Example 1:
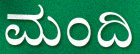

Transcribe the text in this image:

ಮಂದಿ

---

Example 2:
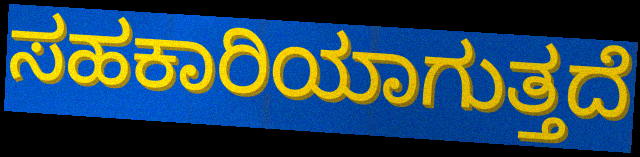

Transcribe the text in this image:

ಸಹಕಾರಿಯಾಗುತ್ತದೆ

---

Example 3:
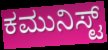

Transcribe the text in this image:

ಕಮುನಿಸ್ಟ್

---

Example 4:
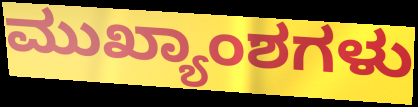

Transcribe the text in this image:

ಮುಖ್ಯಾಂಶಗಳು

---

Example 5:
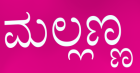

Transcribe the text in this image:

ಮಲ್ಲಣ್ಣ